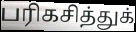
பரிகசித்துக்